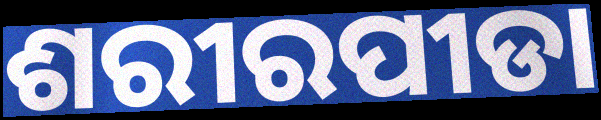
ଶରୀରପୀଡା